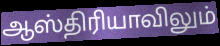
ஆஸ்திரியாவிலும்